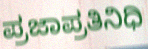
ಪ್ರಜಾಪ್ರತಿನಿಧಿ